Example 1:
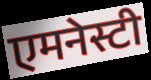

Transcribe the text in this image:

एमनेस्टी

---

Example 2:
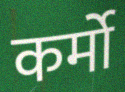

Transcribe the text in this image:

कर्मो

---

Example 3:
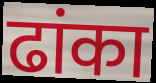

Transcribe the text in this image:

ढांका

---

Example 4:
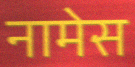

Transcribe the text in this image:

नामेस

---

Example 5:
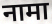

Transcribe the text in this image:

नामा